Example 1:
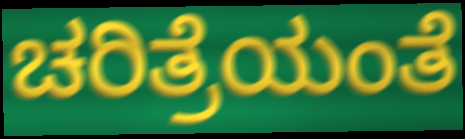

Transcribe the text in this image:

ಚರಿತ್ರೆಯಂತೆ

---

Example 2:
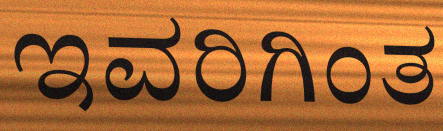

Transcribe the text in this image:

ಇವರಿಗಿಂತ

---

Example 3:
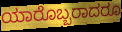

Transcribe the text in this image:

ಯಾರೊಬ್ಬರಾದರೂ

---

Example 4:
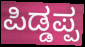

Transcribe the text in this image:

ಪಿಡ್ಡಪ್ಪ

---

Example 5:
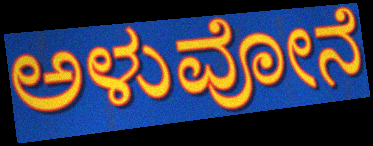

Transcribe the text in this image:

ಅಳುವೋನೆ